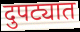
दुपट्यात